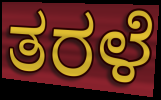
ತರಳೆ